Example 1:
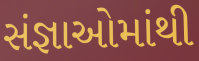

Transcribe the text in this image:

સંજ્ઞાઓમાંથી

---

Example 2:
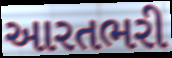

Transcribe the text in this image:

આરતભરી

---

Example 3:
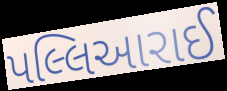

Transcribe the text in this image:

પલ્લિઆરાઈ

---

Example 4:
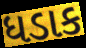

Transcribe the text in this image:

ધડાક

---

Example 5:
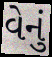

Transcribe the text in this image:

વેનું